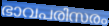
ഭാവപരിസരം